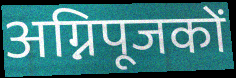
अग्निपूजकों